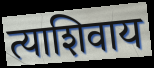
त्याशिवाय